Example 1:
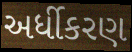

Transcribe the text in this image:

અર્ધીકરણ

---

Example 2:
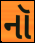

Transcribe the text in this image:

નૉ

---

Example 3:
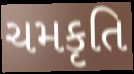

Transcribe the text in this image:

ચમકૃતિ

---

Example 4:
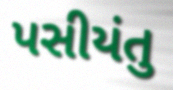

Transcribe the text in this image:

પસીયંતુ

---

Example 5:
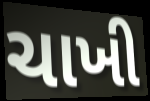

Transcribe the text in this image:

ચાખી